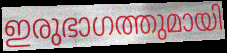
ഇരുഭാഗത്തുമായി